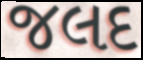
જલદ